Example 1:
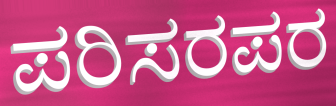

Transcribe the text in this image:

ಪರಿಸರಪರ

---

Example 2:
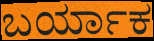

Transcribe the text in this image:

ಬರ್ಯಾಕ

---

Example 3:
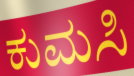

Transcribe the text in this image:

ಕುಮಸಿ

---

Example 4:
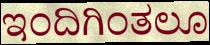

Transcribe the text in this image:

ಇಂದಿಗಿಂತಲೂ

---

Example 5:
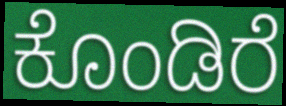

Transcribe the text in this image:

ಕೊಂಡಿರೆ